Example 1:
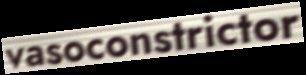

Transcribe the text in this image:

vasoconstrictor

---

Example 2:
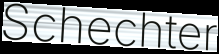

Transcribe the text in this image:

Schechter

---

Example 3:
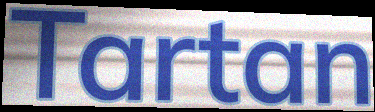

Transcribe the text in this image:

Tartan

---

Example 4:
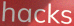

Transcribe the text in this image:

hacks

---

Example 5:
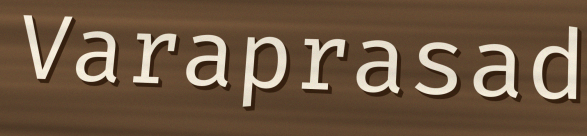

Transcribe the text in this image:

Varaprasad